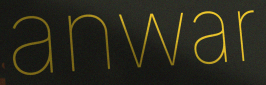
anwar